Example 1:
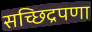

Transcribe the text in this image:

सच्छिद्रपणा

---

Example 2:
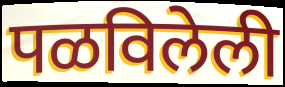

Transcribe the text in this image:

पळविलेली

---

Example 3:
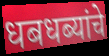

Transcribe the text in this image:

धबधब्यांचे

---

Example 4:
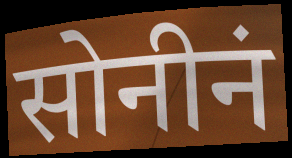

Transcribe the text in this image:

सोनीनं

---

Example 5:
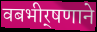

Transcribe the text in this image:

वबभीर्षणाने